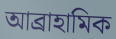
আব্রাহামিক